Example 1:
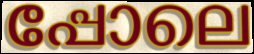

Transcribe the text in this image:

പ്പോലെ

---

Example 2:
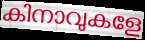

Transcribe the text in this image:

കിനാവുകളേ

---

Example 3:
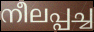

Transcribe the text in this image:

നീലപ്പച്ച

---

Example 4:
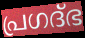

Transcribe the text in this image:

പ്രഗദ്ഭ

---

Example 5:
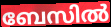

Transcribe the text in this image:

ബേസിൽ